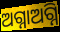
ଅଗ୍ନାଅଗ୍ନି